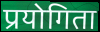
प्रयोगिता